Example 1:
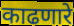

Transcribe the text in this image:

काढणारे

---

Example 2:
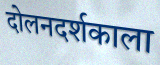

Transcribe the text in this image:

दोलनदर्शकाला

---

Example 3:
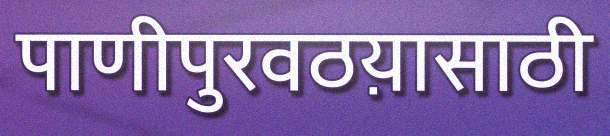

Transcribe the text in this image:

पाणीपुरवठय़ासाठी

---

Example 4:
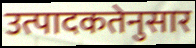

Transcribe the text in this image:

उत्पादकतेनुसार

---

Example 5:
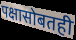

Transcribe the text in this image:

पक्षासोबतही